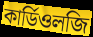
কার্ডিওলজি